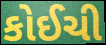
કોઈચી